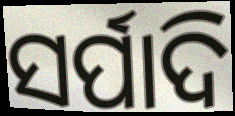
ସର୍ପାଦି